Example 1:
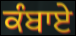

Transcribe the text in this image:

ਕੰਬਾਏ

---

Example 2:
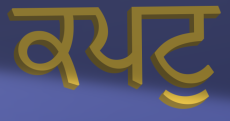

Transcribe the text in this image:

ਕਪਟੁ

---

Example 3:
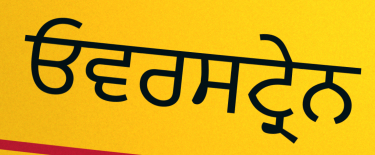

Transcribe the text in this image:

ਓਵਰਸਟ੍ਰੇਨ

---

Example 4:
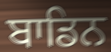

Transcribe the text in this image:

ਬਾਡਿਨ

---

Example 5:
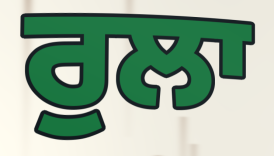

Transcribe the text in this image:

ਰੁਲਾ